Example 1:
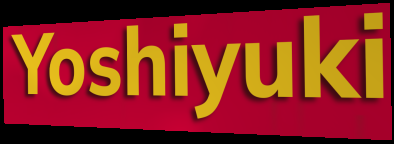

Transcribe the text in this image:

Yoshiyuki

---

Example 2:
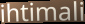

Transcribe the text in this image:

ihtimali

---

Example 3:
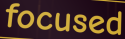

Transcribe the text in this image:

focused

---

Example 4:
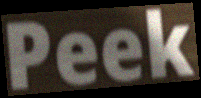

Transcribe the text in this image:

Peek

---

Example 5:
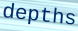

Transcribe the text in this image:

depths